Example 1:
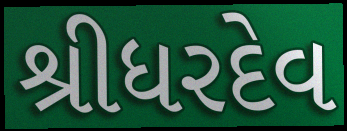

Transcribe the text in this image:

શ્રીધરદેવ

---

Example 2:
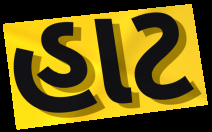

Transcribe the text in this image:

હાટ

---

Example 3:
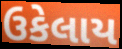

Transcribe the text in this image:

ઉકેલાય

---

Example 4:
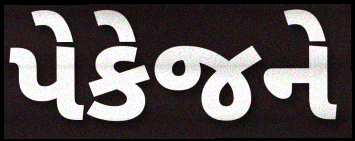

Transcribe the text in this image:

પેકેજને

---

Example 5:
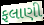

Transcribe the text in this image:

ફલાણી